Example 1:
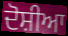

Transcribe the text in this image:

ਦੋਸ਼ੀਆ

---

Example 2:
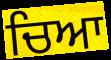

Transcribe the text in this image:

ਚਿਆ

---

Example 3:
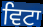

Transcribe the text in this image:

ਵਿਟਾ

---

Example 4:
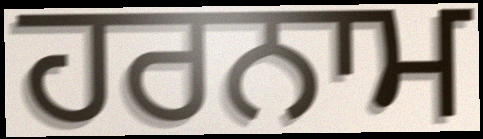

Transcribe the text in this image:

ਹਰਨਾਮ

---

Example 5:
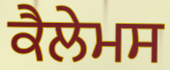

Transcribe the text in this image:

ਕੈਲੇਮਸ